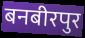
बनबीरपुर